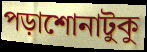
পড়াশোনাটুকু